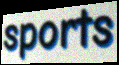
sports